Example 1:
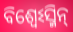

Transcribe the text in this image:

ବିଶ୍ଵେଽସ୍ମିନ୍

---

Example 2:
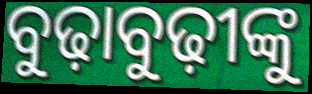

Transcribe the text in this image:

ବୁଢ଼ାବୁଢ଼ୀଙ୍କୁ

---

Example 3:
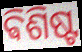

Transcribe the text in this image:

ଵିଶିଷ୍ଟ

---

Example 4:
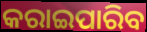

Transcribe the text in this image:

କରାଇପାରିବ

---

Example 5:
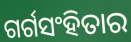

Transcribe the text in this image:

ଗର୍ଗସଂହିତାର